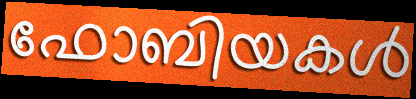
ഫോബിയകൾ